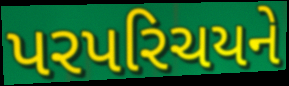
પરપરિચયને